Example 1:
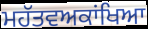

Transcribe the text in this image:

ਮਹੱਤਵਅਕਾਂਖਿਆ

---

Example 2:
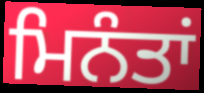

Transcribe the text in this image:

ਮਿਨੰਤਾਂ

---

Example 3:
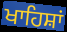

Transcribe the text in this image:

ਖਾਹਿਸ਼ਾਂ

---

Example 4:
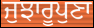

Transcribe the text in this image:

ਜੁਝਾਰੂਪੁਣਾ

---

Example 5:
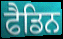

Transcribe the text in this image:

ਫੈਡਿਨ